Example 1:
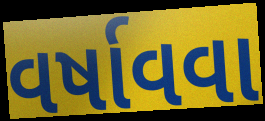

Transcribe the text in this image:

વર્ષાવવા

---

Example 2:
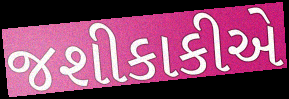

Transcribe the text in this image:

જશીકાકીએ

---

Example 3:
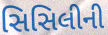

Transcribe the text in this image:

સિસિલીની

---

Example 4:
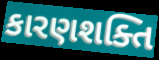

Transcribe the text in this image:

કારણશક્તિ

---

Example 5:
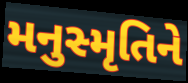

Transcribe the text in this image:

મનુસ્મૃતિને